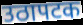
उठापटक